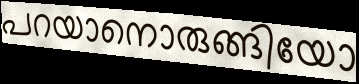
പറയാനൊരുങ്ങിയോ